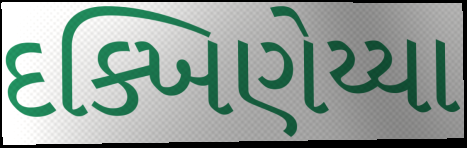
દક્ખિણેય્યા